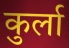
कुर्ला